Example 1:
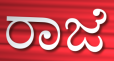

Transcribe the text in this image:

ರಾಜೆ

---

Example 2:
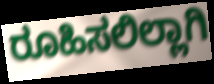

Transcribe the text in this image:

ರೂಹಿಸಲಿಲ್ಲಾಗಿ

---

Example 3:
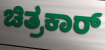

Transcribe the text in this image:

ಚಿತ್ರಕಾರ್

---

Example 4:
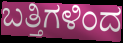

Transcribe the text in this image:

ಬತ್ತಿಗಳಿಂದ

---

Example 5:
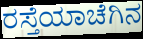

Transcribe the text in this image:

ರಸ್ತೆಯಾಚೆಗಿನ